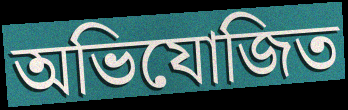
অভিযোজিত